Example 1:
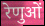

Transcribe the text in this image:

रेणुओं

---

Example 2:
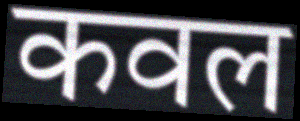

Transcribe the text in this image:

कवल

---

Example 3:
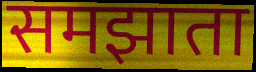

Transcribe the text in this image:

समझाता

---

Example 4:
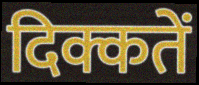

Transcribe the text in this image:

दिक्कतें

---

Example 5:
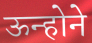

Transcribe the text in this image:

ऊन्होने